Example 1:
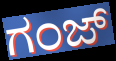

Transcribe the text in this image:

ಗಂಜ್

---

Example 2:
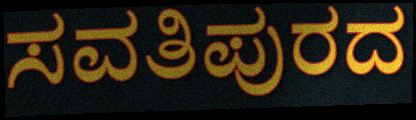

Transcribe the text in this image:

ಸವತಿಪುರದ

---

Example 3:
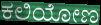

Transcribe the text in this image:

ಕಲಿಯೋಣ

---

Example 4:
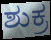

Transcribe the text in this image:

ಶುಕ್ರ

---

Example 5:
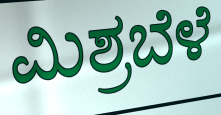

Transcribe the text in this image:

ಮಿಶ್ರಬೆಳೆ